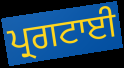
ਪ੍ਰ੍ਰਗਟਾਈ